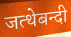
जत्थेबन्दी